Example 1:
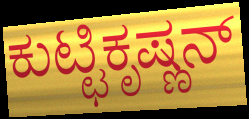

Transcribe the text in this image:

ಕುಟ್ಟಿಕೃಷ್ಣನ್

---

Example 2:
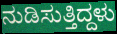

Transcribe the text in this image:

ನುಡಿಸುತ್ತಿದ್ದಳು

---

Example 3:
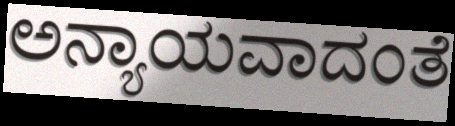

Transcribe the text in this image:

ಅನ್ಯಾಯವಾದಂತೆ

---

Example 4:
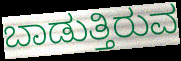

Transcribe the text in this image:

ಬಾಡುತ್ತಿರುವ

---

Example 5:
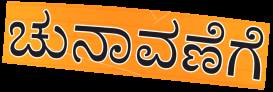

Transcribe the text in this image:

ಚುನಾವಣೆಗೆ